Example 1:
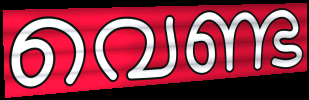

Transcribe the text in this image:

വെണ്ട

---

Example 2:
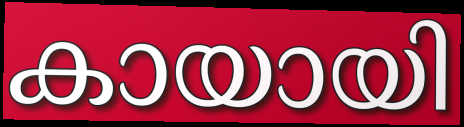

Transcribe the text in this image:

കായായി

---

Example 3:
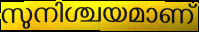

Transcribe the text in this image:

സുനിശ്ചയമാണ്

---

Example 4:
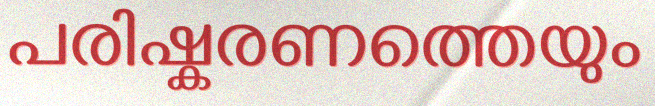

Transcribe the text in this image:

പരിഷ്കരണത്തെയും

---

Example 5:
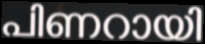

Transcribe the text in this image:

പിണറായി